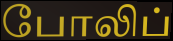
போலிப்